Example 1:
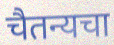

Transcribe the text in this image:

चैतन्यचा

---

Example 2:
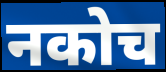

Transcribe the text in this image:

नकोच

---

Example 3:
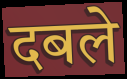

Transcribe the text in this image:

दबले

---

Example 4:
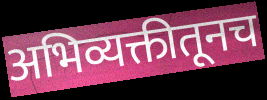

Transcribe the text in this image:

अभिव्यक्तीतूनच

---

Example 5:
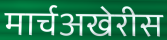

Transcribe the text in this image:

मार्चअखेरीस